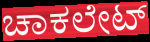
ಚಾಕಲೇಟ್